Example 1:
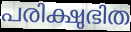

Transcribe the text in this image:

പരിക്ഷുഭിത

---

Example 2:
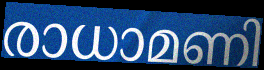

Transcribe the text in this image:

രാധാമണി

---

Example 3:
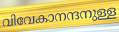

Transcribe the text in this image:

വിവേകാനന്ദനുള്ള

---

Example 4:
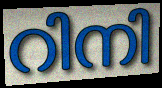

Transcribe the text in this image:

റിനി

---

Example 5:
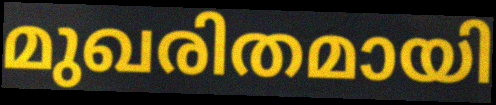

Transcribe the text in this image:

മുഖരിതമായി